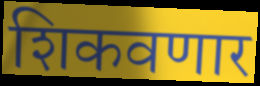
शिकवणार